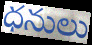
ధనులు